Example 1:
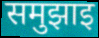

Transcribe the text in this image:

समुझाइ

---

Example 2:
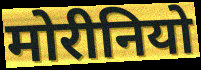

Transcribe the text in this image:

मोरीनियो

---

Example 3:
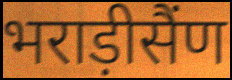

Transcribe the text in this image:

भराड़ीसैंण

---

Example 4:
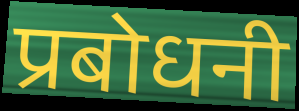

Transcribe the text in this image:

प्रबोधनी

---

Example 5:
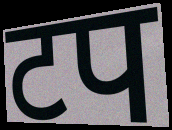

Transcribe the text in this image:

टप